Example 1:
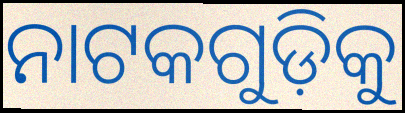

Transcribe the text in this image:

ନାଟକଗୁଡ଼ିକୁ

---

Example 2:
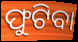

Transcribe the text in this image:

ଫୁଟିବା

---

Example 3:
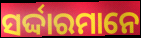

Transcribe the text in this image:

ସର୍ଦ୍ଦାରମାନେ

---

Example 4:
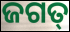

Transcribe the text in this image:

ଜଗତ୍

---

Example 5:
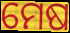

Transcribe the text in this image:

ମେଷ